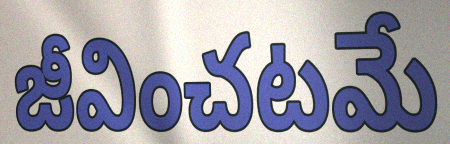
జీవించటమే